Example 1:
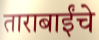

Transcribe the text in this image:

ताराबाईंचे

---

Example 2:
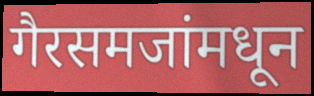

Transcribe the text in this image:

गैरसमजांमधून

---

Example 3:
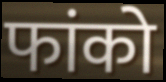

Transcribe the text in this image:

फांको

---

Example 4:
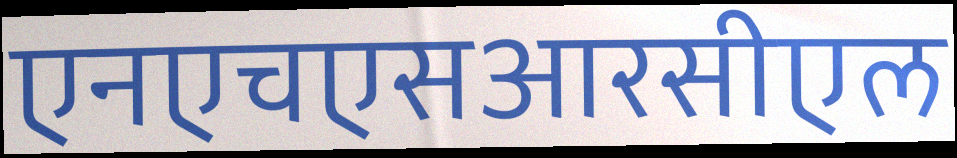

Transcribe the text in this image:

एनएचएसआरसीएल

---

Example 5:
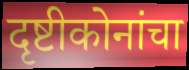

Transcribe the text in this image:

दृष्टीकोनांचा